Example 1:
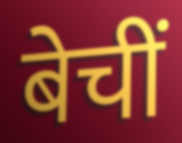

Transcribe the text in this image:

बेचीं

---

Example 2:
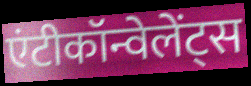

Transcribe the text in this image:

एंटीकॉन्वेलेंट्स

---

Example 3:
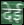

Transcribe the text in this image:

देई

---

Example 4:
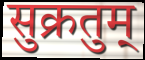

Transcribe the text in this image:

सुक्रतुम्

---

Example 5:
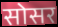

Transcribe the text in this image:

सोसर